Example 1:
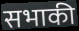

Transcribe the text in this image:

सभाकी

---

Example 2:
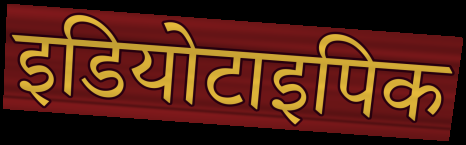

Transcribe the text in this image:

इडियोटाइपिक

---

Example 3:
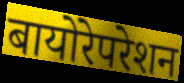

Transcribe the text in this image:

बायोरेपरेशन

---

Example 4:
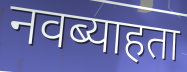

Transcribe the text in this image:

नवब्याहता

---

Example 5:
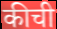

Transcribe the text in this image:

कीची